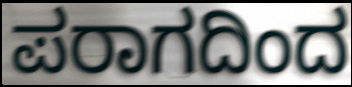
ಪರಾಗದಿಂದ